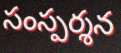
సంస్పర్శన